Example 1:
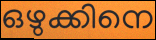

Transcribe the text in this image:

ഒഴുക്കിനെ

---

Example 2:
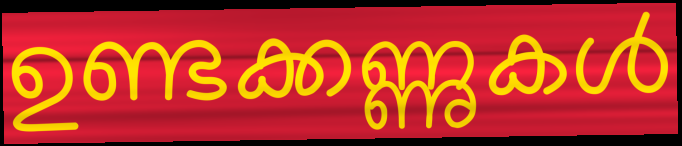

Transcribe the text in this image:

ഉണ്ടക്കണ്ണുകൾ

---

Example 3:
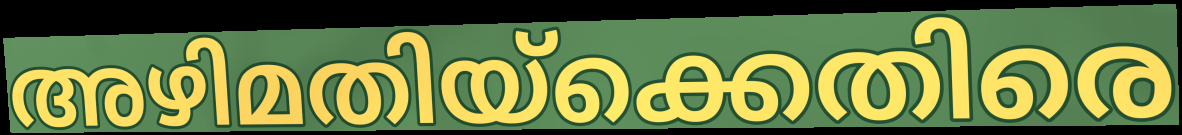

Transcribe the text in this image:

അഴിമതിയ്ക്കെതിരെ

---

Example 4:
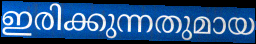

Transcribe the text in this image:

ഇരിക്കുന്നതുമായ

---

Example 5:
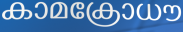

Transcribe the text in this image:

കാമക്രോധൗ